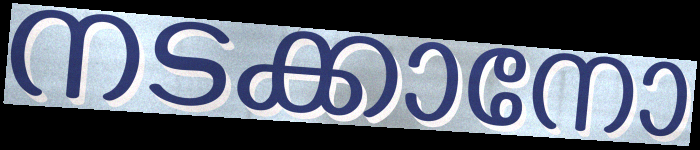
നടക്കാനോ